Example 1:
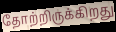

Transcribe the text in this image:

தோற்றிருக்கிறது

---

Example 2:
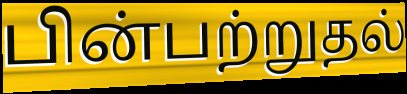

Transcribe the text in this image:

பின்பற்றுதல்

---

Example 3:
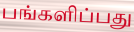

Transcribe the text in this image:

பங்களிப்பது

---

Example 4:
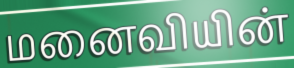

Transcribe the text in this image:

மனைவியின்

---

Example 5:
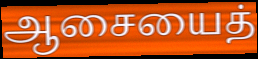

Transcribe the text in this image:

ஆசையைத்